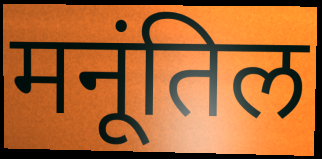
मनूंतिल